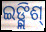
ଇଙ୍ଗ୍ଲିଶ୍